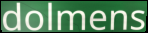
dolmens